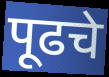
पूढचे